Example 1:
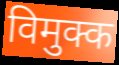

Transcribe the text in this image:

विमुक्क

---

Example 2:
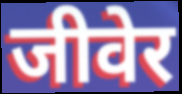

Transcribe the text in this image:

जीवेर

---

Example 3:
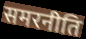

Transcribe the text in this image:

समरनीति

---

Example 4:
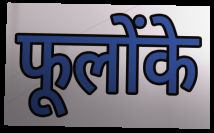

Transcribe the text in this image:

फूलोंके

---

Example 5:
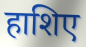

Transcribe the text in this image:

हाशिए